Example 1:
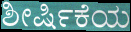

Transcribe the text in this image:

ಶೀರ್ಷಿಕೆಯ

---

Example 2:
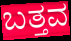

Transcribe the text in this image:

ಬತ್ತವ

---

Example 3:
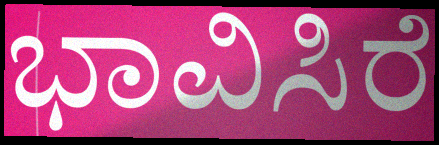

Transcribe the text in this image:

ಭಾವಿಸಿರೆ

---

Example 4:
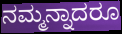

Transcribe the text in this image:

ನಮ್ಮನ್ನಾದರೂ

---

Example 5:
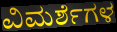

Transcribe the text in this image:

ವಿಮರ್ಶೆಗಳ